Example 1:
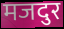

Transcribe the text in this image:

मजदुर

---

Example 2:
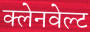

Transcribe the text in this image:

क्लेनवेल्ट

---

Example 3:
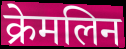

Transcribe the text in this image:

क्रेमलिन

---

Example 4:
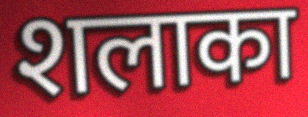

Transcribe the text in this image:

शलाका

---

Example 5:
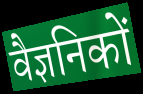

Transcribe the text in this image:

वैज्ञनिकों